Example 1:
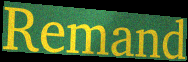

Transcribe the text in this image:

Remand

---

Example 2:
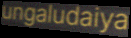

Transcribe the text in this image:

ungaludaiya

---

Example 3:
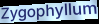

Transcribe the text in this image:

Zygophyllum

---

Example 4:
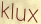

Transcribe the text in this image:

klux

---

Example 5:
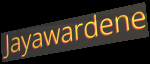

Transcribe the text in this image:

Jayawardene